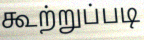
கூற்றுப்படி